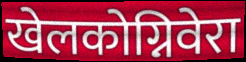
खेलकोग्निवेरा